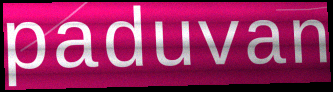
paduvan